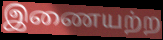
இணையற்ற